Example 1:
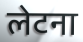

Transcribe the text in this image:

लेटना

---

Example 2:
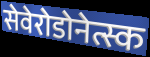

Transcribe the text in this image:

सेवेरोडोनेत्स्क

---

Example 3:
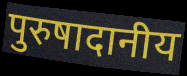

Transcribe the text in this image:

पुरुषादानीय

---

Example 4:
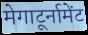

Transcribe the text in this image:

मेगाटूर्नामेंट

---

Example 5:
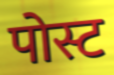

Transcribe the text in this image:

पोस्ट